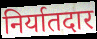
निर्यातदार